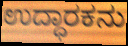
ಉದ್ಧಾರಕನು